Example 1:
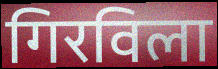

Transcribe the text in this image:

गिरविला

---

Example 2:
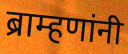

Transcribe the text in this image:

ब्राम्हणांनी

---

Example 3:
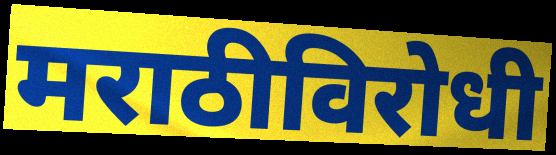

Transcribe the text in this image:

मराठीविरोधी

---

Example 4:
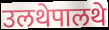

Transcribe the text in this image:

उलथेपालथे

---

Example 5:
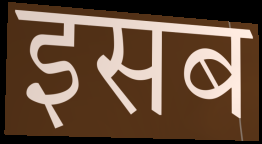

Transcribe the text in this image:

इसब